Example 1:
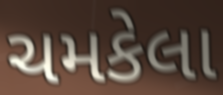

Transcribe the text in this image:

ચમકેલા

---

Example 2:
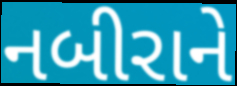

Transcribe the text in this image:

નબીરાને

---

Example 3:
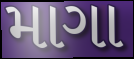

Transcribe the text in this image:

માગા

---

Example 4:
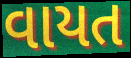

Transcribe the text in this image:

વાયત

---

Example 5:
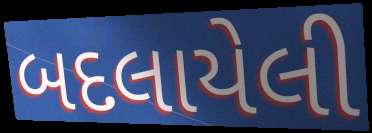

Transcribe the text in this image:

બદલાયેલી